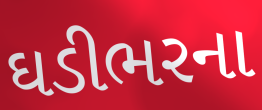
ઘડીભરના